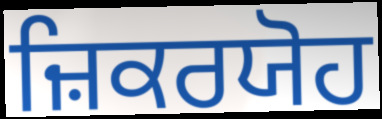
ਜ਼ਿਕਰਯੋਹ